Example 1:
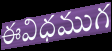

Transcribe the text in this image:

ఈవిధముగ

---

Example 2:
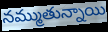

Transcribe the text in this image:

నమ్ముతున్నాయి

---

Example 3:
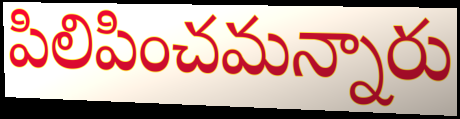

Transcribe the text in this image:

పిలిపించమన్నారు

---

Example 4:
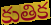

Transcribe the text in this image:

కుతిక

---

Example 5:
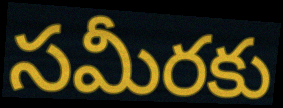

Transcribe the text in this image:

సమీరకు